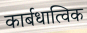
कार्बधात्विक